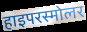
हाइपरस्मोलर